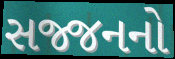
સજ્જનનો